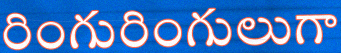
రింగురింగులుగా